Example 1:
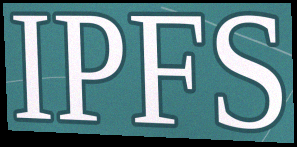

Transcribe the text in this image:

IPFS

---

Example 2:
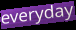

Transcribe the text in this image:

everyday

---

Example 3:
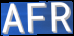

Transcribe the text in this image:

AFR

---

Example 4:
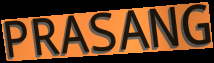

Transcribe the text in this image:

PRASANG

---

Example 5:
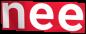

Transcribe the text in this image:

nee